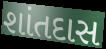
શાંતદાસ